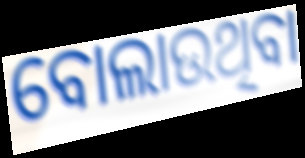
ବୋଲାଉଥିବା